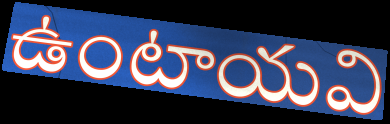
ఉంటాయవి